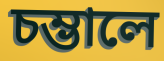
চম্ভালে